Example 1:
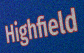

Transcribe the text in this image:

Highfield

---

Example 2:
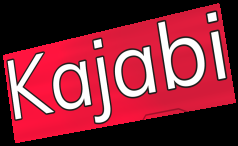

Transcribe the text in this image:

Kajabi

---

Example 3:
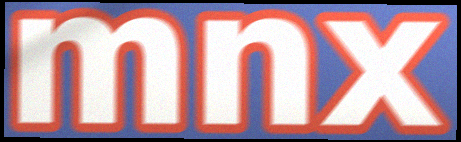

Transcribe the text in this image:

mnx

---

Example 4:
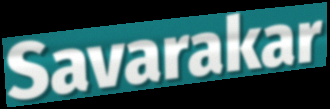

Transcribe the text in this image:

Savarakar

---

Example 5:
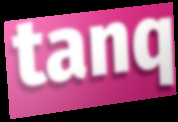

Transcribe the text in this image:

tanq